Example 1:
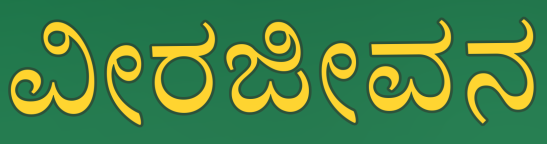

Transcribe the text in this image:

ವೀರಜೀವನ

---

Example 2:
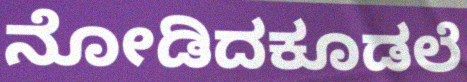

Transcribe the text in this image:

ನೋಡಿದಕೂಡಲೆ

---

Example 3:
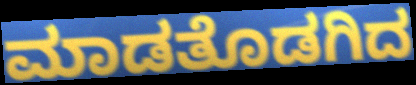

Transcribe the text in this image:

ಮಾಡತೊಡಗಿದ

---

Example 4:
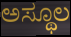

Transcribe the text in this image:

ಅಸ್ಥೂಲ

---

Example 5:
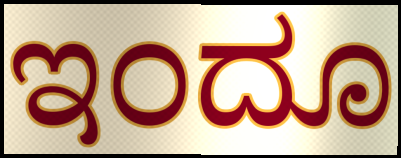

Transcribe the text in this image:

ಇಂದೂ